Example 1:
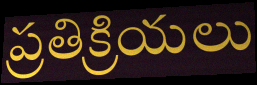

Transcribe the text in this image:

ప్రతిక్రియలు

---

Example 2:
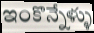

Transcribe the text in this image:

ఇంకొన్నేళ్ళు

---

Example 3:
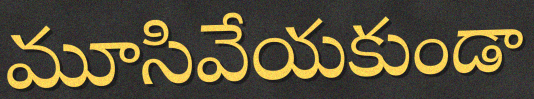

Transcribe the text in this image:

మూసివేయకుండా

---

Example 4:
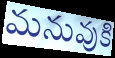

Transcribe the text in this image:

మనువుకి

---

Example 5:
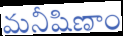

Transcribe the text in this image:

మనీషిణాం